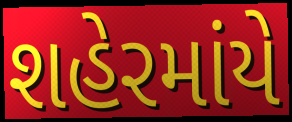
શહેરમાંયે